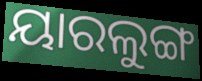
ୟାରଲୁଙ୍ଗ